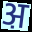
अ़